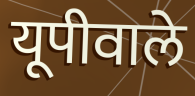
यूपीवाले